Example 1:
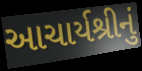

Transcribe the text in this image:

આચાર્યશ્રીનું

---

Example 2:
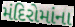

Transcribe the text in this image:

મંદિરોમાંના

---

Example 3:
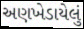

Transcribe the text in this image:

અણખેડાયેલું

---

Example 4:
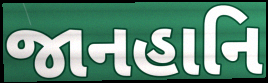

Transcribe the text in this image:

જાનહાનિ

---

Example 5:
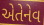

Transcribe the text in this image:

એતેનેવ